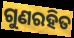
ଗୁଣରହିତ